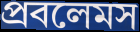
প্রবলেমস